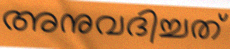
അനുവദിച്ചത്